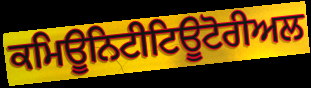
ਕਮਿਊਨਿਟੀਟਿਊਟੋਰੀਅਲ